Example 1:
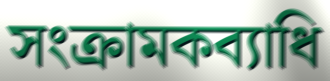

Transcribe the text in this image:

সংক্রামকব্যাধি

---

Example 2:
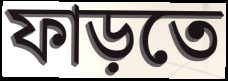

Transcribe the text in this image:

ফাড়তে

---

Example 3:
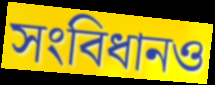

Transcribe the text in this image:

সংবিধানও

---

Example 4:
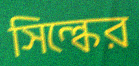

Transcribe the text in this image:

সিল্কের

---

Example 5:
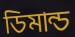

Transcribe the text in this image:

ডিমান্ড